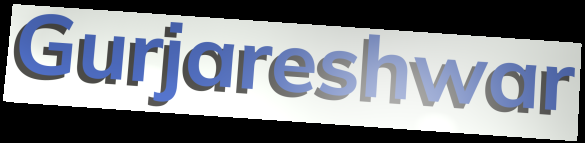
Gurjareshwar